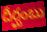
దీర్ఘంబు